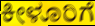
ಕೀಳೂರಿಗೆ